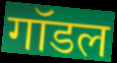
गॉडल